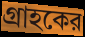
গ্রাহকের